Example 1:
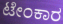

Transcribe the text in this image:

ಟೇಂಕಾರ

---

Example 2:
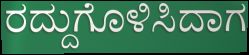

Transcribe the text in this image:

ರದ್ದುಗೊಳಿಸಿದಾಗ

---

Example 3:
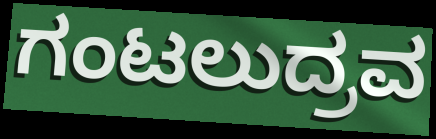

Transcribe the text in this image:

ಗಂಟಲುದ್ರವ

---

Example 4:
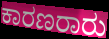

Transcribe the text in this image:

ಕಾರಣರಾರು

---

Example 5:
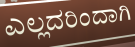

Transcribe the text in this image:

ಎಲ್ಲದರಿಂದಾಗಿ